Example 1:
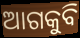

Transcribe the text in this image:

ଆଗକୁବି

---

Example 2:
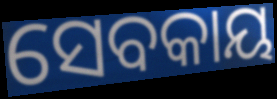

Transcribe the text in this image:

ସେବକାୟ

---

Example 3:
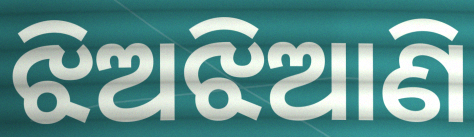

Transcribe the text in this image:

ଝିଅଝିଆଣି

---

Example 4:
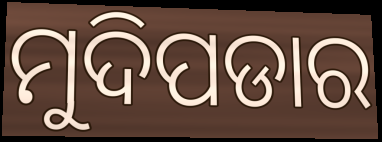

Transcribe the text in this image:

ମୁଦିପଡାର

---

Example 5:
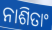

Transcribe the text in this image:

ନାଶିତାଂ